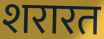
शरारत